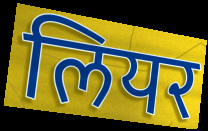
लियर